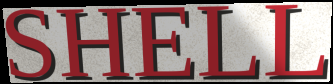
SHELL